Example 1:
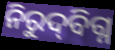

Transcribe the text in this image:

ନିରୁଦ୍‌ବିଗ୍ନ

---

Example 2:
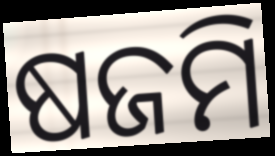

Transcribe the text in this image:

ଷଜମି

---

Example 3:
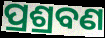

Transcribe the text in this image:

ପ୍ରଶ୍ରବଣ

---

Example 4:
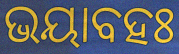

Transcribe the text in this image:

ଭୟାବହଃ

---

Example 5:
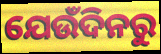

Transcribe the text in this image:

ଯେଉଁଦିନରୁ